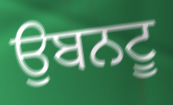
ਉਬਨਟੂ